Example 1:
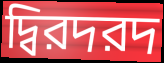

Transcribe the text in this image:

দ্বিরদরদ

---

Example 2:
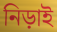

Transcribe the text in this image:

নিড়াই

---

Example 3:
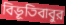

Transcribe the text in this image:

বিভূতিবাবুর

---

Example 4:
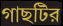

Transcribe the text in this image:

গাছটির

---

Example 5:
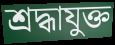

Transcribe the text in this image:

শ্রদ্ধাযুক্ত